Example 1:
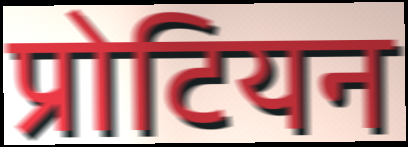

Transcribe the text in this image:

प्रोटियन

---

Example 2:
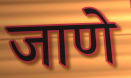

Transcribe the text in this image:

जाणे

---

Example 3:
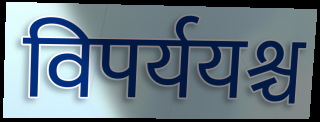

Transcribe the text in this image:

विपर्ययश्च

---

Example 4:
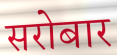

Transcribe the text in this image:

सरोबार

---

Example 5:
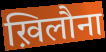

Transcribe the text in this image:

ख़िलौना